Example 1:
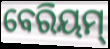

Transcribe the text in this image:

ବେରିୟମ୍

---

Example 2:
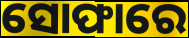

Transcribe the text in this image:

ସୋଫାରେ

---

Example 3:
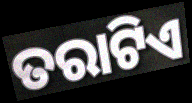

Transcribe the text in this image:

ତରାଟିଏ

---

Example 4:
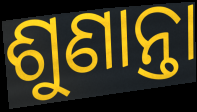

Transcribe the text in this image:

ଶୁଣାନ୍ତା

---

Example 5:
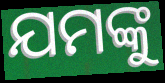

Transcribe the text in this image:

ଯମଙ୍କୁ